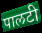
पालटी